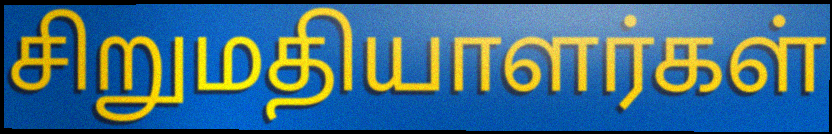
சிறுமதியாளர்கள்